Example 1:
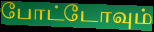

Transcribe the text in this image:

போட்டோவும்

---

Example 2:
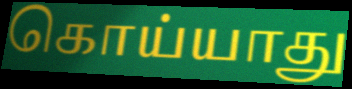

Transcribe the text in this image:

கொய்யாது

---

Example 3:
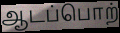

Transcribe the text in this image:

ஆடப்பொற்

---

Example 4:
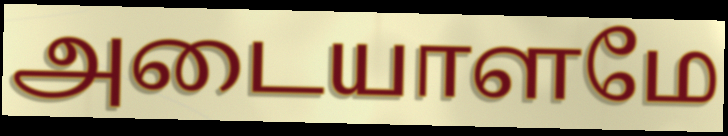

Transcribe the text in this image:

அடையாளமே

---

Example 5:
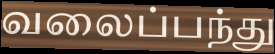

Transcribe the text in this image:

வலைப்பந்து